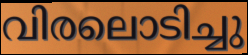
വിരലൊടിച്ചു